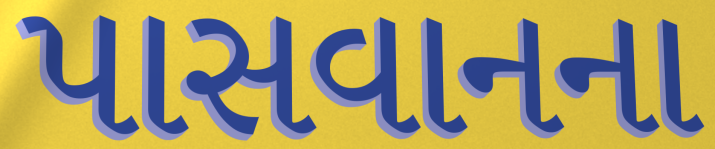
પાસવાનના